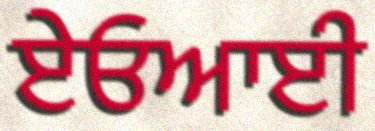
ਏਓਆਈ